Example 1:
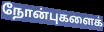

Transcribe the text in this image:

நோன்புகளைக்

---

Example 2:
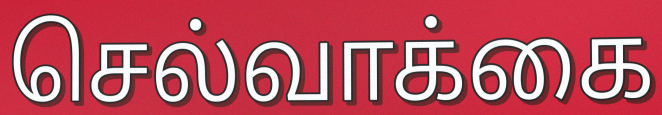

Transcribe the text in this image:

செல்வாக்கை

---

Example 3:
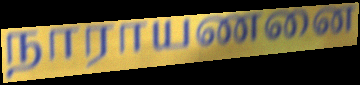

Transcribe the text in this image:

நாராயணனை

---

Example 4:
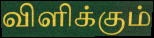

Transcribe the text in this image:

விளிக்கும்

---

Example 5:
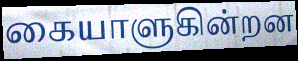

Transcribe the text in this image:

கையாளுகின்றன